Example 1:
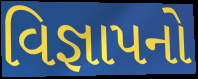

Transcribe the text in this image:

વિજ્ઞાપનો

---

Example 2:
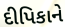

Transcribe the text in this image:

દીપિકાને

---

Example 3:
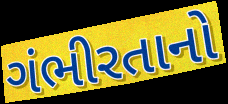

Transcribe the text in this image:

ગંભીરતાનો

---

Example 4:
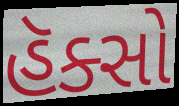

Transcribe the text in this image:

હૅક્સો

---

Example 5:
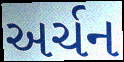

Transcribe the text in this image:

અર્ચન